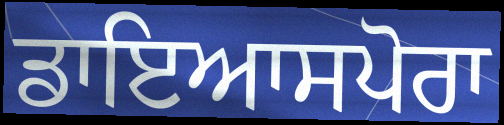
ਡਾਇਆਸਪੋਰਾ